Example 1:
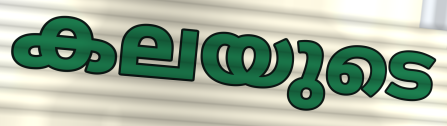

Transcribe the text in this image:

കലയുടെ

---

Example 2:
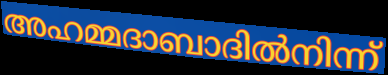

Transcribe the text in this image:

അഹമ്മദാബാദിൽനിന്ന്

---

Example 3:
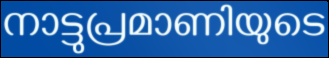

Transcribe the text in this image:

നാട്ടുപ്രമാണിയുടെ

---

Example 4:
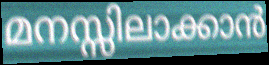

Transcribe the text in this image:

മനസ്സിലാക്കാൻ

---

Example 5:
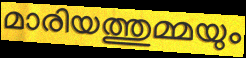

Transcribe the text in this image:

മാരിയത്തുമ്മയും